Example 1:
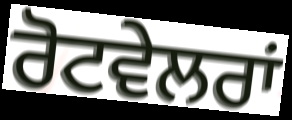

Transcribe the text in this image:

ਰੋਟਵੇਲਰਾਂ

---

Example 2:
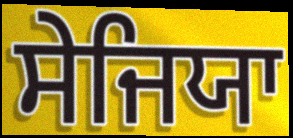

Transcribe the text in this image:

ਸੇਜਿਯਾ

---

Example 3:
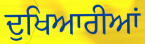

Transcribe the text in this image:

ਦੁਖਿਆਰੀਆਂ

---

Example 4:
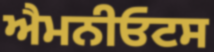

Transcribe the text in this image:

ਐਮਨੀਓਟਸ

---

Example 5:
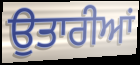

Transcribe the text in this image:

ਉਤਾਰੀਆਂ